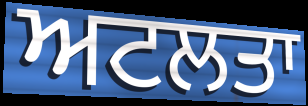
ਅਟਲਤਾ